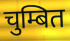
चुम्बित